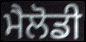
ਮੈਲੋਡੀ